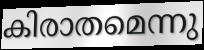
കിരാതമെന്നു